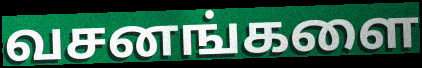
வசனங்களை